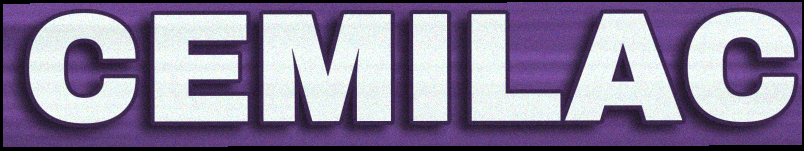
CEMILAC